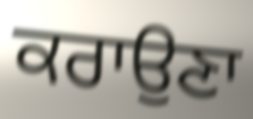
ਕਰਾਉਣਾ